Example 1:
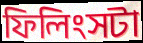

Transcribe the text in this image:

ফিলিংসটা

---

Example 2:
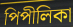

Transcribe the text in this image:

পিপীলিকা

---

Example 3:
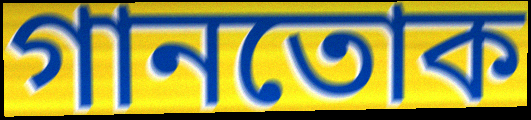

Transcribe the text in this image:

গানতোক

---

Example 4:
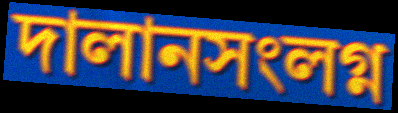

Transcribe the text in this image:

দালানসংলগ্ন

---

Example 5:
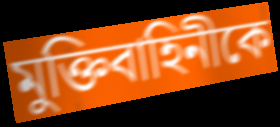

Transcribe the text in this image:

মুক্তিবাহিনীকে